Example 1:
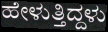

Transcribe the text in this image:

ಹೇಳುತ್ತಿದ್ದಳು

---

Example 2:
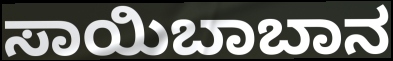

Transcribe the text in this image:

ಸಾಯಿಬಾಬಾನ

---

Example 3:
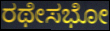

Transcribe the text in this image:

ರಥೇಸಭೋ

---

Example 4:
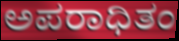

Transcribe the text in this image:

ಅಪರಾಧಿತಂ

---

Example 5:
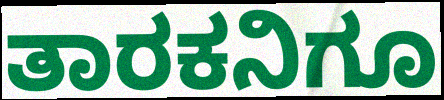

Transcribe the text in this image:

ತಾರಕನಿಗೂ